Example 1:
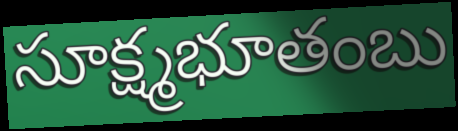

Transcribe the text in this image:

సూక్ష్మభూతంబు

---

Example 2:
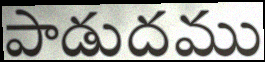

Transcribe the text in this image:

పాడుదము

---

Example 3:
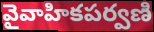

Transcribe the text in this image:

వైవాహికపర్వణి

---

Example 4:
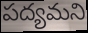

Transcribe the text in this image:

పద్యమని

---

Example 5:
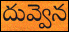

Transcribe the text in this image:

దువ్వెన